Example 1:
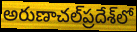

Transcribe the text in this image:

అరుణాచల్‌ప్రదేశ్‌లో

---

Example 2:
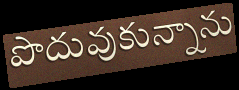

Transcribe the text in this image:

పొదువుకున్నాను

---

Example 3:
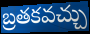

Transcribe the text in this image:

బ్రతకవచ్చు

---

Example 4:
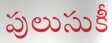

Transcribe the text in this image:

పులుసుకీ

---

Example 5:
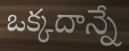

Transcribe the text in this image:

ఒక్కదాన్నే